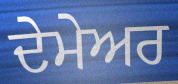
ਦੇਮੇਅਰ